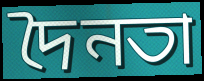
দৈনতা